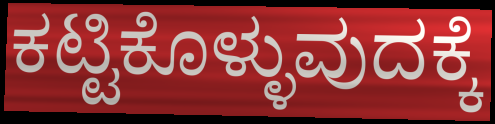
ಕಟ್ಟಿಕೊಳ್ಳುವುದಕ್ಕೆ